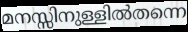
മനസ്സിനുള്ളിൽതന്നെ